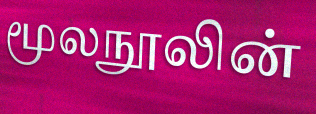
மூலநூலின்